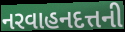
નરવાહનદત્તની